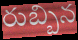
రుబ్బిన